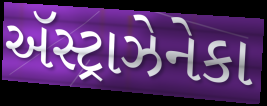
ઍસ્ટ્રાઝેનેકા